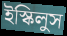
ইস্কিলুস